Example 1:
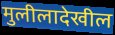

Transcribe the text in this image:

मुलीलादेखील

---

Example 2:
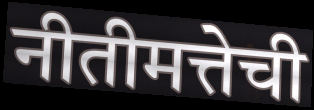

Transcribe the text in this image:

नीतीमत्तेची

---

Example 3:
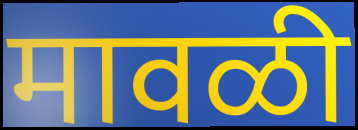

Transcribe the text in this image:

मावळी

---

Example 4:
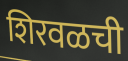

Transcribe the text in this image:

शिरवळची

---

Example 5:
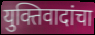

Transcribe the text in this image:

युक्तिवादांचा